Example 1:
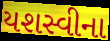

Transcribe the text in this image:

યશસ્વીના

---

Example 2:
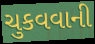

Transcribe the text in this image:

ચુકવવાની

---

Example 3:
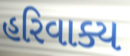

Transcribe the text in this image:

હરિવાક્ય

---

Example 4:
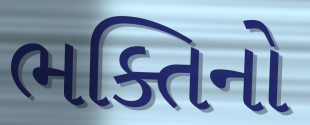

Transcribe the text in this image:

ભક્તિનો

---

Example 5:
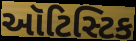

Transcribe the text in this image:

ઑટિસ્ટિક